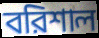
বরিশাল